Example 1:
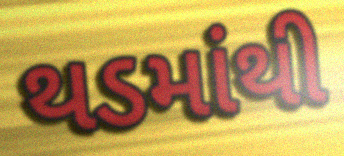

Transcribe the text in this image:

થડમાંથી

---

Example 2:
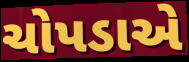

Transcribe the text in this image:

ચોપડાએ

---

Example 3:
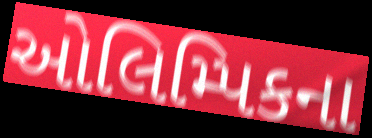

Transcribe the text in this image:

ઓલિમ્પિકના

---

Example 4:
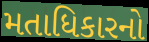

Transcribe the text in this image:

મતાધિકારનો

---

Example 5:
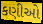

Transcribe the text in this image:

કણીઓ